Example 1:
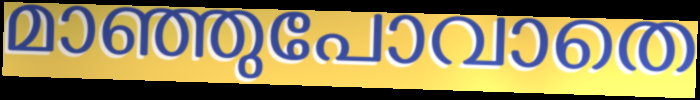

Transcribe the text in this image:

മാഞ്ഞുപോവാതെ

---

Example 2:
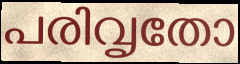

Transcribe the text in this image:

പരിവൃതോ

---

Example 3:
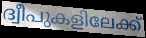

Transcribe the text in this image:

ദ്വീപുകളിലേക്ക്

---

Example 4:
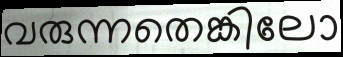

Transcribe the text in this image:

വരുന്നതെങ്കിലോ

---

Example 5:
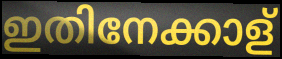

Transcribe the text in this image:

ഇതിനേക്കാള്